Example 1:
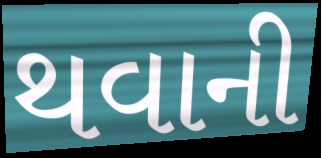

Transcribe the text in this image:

થવાની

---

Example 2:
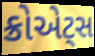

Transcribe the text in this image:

ક્રોએટ્સ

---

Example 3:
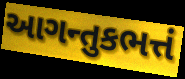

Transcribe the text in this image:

આગન્તુકભત્તં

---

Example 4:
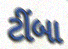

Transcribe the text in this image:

ટીંબા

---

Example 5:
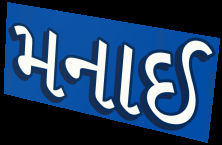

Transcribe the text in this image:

મનાઈ